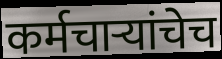
कर्मचाऱ्यांचेच